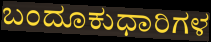
ಬಂದೂಕುಧಾರಿಗಳ